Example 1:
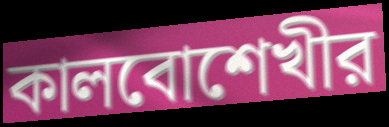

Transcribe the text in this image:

কালবোশেখীর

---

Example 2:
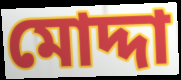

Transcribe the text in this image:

মোদ্দা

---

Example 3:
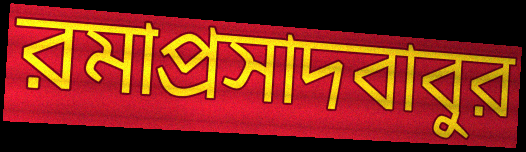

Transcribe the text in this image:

রমাপ্রসাদবাবুর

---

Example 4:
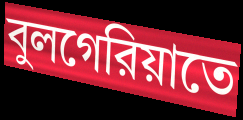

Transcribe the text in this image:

বুলগেরিয়াতে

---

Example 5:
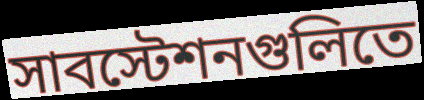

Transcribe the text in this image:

সাবস্টেশনগুলিতে